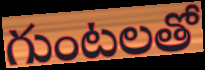
గుంటలతో